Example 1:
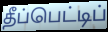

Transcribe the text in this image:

தீப்பெட்டிப்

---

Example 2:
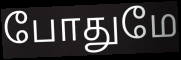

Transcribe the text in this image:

போதுமே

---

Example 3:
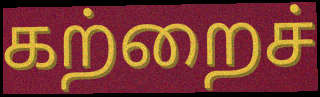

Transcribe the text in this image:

கற்றைச்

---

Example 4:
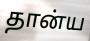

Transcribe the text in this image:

தான்ய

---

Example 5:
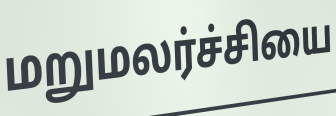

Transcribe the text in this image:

மறுமலர்ச்சியை